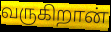
வருகிறான்